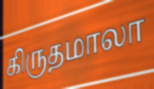
கிருதமாலா